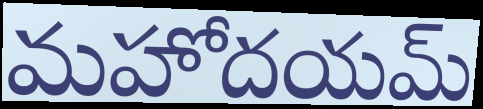
మహోదయమ్